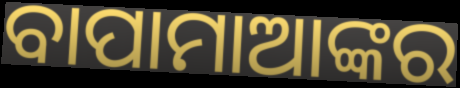
ବାପାମାଆଙ୍କର